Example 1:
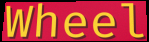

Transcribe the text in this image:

Wheel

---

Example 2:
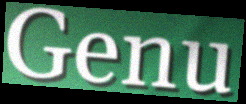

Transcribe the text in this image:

Genu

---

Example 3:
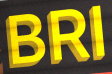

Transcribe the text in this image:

BRI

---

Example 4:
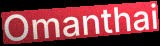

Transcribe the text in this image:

Omanthai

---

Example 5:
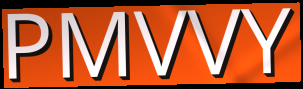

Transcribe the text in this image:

PMVVY